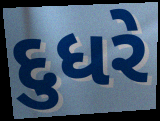
દુધરે